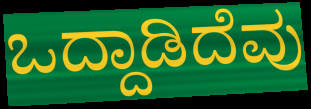
ಒದ್ದಾಡಿದೆವು